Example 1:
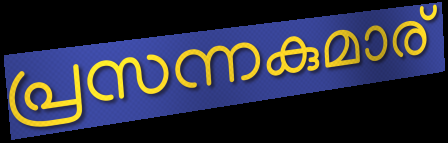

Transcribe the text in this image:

പ്രസന്നകുമാര്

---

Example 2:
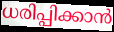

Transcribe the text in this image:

ധരിപ്പിക്കാൻ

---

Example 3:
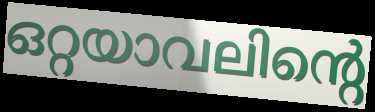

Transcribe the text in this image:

ഒറ്റയാവലിന്റെ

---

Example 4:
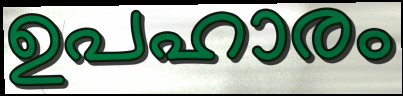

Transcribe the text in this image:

ഉപഹാരം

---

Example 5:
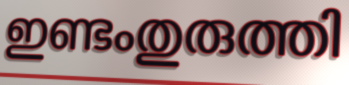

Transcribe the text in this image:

ഇണ്ടംതുരുത്തി